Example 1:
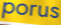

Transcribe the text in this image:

porus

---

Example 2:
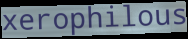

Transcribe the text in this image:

xerophilous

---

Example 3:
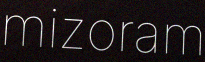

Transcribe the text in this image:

mizoram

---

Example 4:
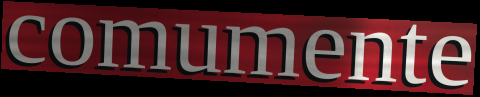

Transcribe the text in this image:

comumente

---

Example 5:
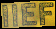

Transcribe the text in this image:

IIEF